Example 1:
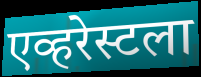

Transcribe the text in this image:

एव्हरेस्टला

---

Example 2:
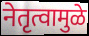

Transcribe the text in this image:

नेतृत्वामुळे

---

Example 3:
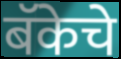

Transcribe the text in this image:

बॅकेचे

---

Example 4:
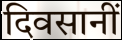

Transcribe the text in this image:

दिवसानीं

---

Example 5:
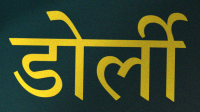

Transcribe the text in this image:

डोर्ली